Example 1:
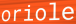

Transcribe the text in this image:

oriole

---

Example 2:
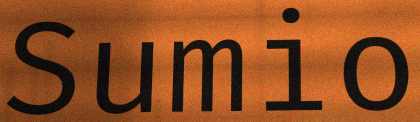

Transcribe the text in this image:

Sumio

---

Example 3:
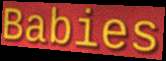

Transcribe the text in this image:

Babies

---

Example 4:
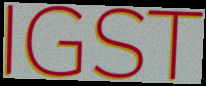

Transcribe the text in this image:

IGST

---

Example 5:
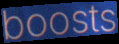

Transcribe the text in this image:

boosts